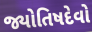
જ્યોતિષદેવો